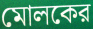
মোলকের